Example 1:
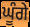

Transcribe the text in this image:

ਘੂੰਗੇ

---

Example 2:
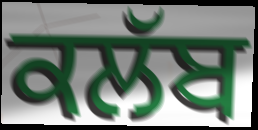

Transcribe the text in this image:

ਕਲੱਬ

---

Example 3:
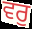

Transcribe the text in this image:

ਵਰੁ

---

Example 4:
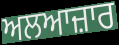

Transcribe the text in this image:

ਅਲਆਜ਼ਾਰ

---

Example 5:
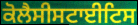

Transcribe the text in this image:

ਕੋਲੈਸੀਸਟਾਈਟਿਸ